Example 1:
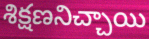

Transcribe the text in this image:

శిక్షణనిచ్చాయి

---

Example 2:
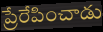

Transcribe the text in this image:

ప్రేరేపించాడు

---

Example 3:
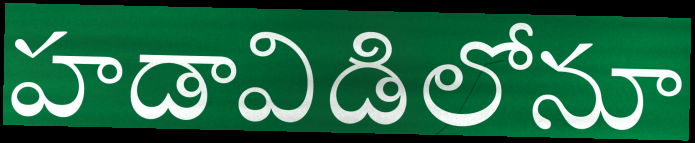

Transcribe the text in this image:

హడావిడిలోనూ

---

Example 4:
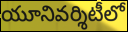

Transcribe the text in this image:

యూనివర్శిటీలో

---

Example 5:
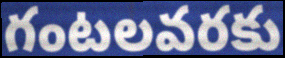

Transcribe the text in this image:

గంటలవరకు